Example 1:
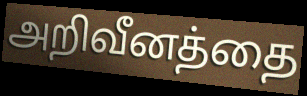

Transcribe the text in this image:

அறிவீனத்தை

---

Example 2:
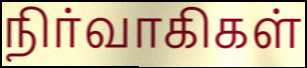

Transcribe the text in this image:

நிர்வாகிகள்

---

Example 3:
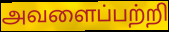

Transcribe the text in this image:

அவளைப்பற்றி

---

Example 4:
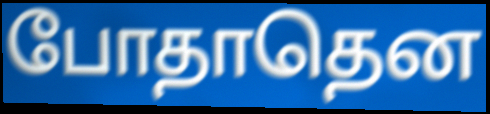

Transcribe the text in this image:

போதாதென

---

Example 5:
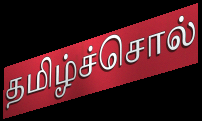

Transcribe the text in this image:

தமிழ்ச்சொல்